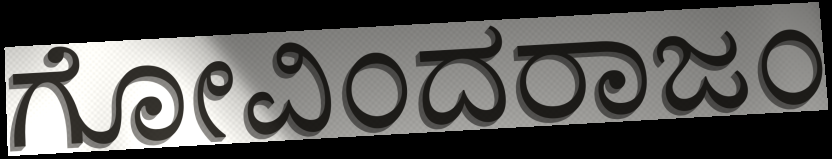
ಗೋವಿಂದರಾಜಂ